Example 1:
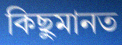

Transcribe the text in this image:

কিছুমানত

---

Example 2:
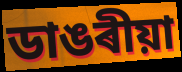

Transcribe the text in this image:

ডাঙৰীয়া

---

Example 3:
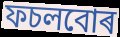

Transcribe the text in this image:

ফচলবোৰ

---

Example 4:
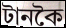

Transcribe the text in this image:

টানকৈ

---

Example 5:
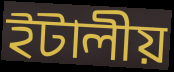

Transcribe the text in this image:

ইটালীয়